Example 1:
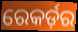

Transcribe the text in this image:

ରେକର୍ଡ଼ର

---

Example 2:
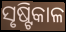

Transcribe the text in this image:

ସୃଷ୍ଟିକାଳ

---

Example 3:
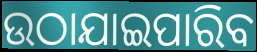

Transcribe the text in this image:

ଉଠାଯାଇପାରିବ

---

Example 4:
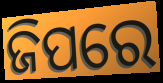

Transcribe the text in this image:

ଜିପରେ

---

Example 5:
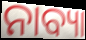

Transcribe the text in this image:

ନାବ୍ୟା